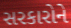
સરકારોને